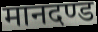
मानदण्ड